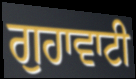
ਗੁਹਾਵਾਟੀ